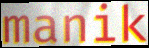
manik